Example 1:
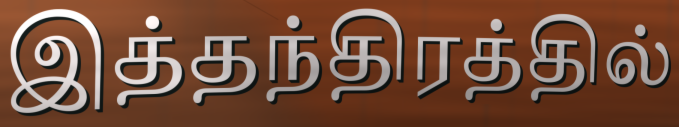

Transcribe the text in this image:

இத்தந்திரத்தில்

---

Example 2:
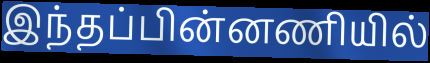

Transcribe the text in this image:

இந்தப்பின்னணியில்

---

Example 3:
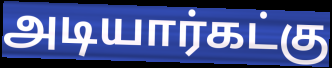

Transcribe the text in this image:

அடியார்கட்கு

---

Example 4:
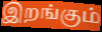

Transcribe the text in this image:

இறங்கும்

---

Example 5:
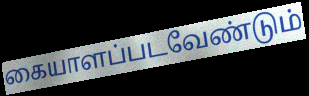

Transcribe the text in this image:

கையாளப்படவேண்டும்